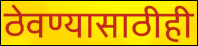
ठेवण्यासाठीही